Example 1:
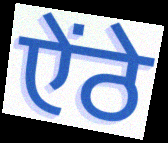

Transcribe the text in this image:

ऐंठे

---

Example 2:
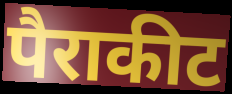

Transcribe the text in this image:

पैराकीट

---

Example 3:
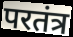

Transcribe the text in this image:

परतंत्र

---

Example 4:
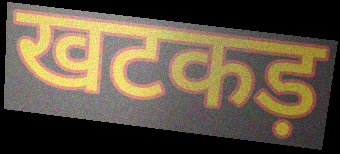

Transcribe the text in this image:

खटकड़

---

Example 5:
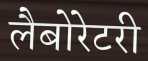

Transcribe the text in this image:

लैबोरेटरी